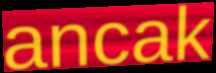
ancak